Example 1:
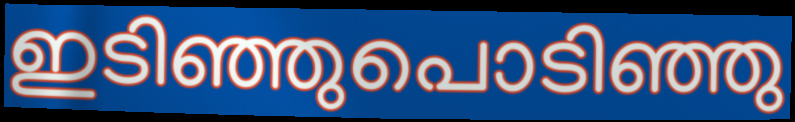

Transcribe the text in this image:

ഇടിഞ്ഞുപൊടിഞ്ഞു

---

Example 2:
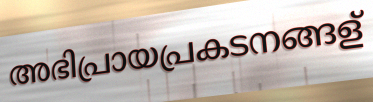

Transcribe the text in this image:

അഭിപ്രായപ്രകടനങ്ങള്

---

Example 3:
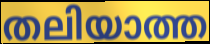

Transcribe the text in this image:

തലിയാത്ത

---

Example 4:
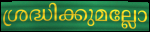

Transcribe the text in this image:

ശ്രദ്ധിക്കുമല്ലോ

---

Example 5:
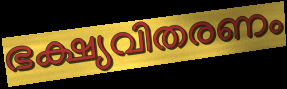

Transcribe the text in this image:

ഭക്ഷ്യവിതരണം